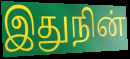
இதுநின்